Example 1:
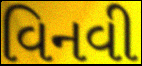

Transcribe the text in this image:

વિનવી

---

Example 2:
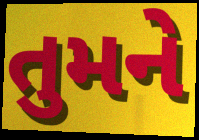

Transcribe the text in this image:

તુમને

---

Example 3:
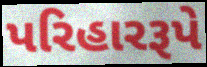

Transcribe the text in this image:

પરિહારરૂપે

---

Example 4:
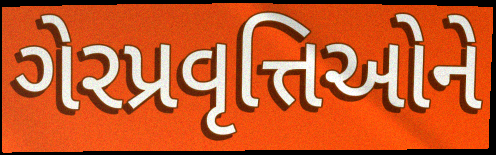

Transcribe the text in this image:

ગેરપ્રવૃત્તિઓને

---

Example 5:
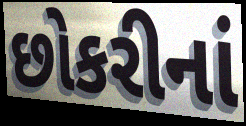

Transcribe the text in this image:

છોકરીનાં